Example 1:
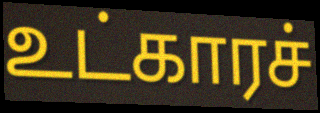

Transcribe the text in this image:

உட்காரச்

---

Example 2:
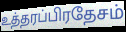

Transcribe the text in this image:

உத்தரப்பிரதேசம்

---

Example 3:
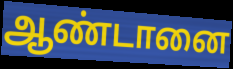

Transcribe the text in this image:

ஆண்டானை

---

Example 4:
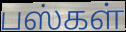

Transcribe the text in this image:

பஸ்கள்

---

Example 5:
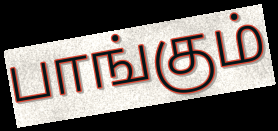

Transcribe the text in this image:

பாங்கும்